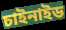
চাইনাইড